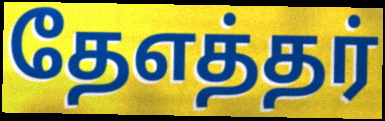
தேஎத்தர்